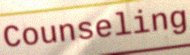
Counseling